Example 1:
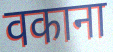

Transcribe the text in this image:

वकाना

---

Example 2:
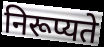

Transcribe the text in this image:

निरूप्यते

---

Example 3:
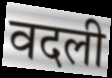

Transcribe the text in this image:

वदली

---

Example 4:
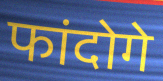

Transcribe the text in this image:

फांदोगे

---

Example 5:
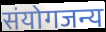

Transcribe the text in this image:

संयोगजन्य